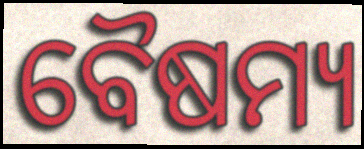
ବୈଷମ୍ୟ